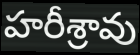
హరీశ్రావు